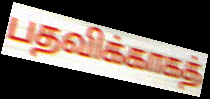
பதவிக்காகத்